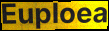
Euploea